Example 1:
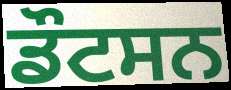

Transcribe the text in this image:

ਡੌਟਸਨ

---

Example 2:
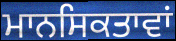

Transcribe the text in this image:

ਮਾਨਸਿਕਤਾਵਾਂ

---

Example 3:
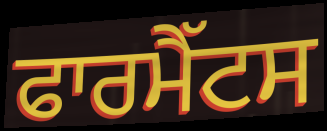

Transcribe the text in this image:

ਫਾਰਮੈੱਟਸ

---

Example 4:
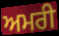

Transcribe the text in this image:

ਅਮਰੀ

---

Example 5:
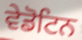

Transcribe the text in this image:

ਵੇਡੋਟਿਨ